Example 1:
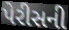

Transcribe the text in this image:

પેરીસની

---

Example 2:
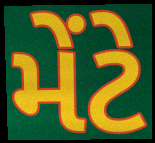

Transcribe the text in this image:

મેંટે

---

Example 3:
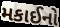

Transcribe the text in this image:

મકાઈનો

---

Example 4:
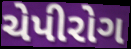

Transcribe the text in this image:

ચેપીરોગ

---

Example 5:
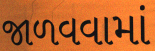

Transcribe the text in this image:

જાળવવામાં